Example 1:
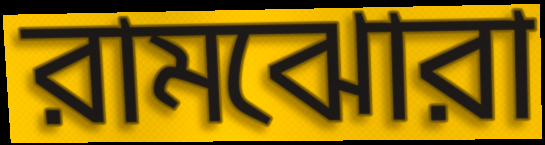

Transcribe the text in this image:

রামঝোরা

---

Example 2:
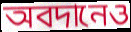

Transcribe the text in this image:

অবদানেও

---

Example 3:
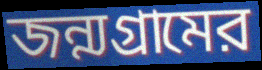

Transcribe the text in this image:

জন্মগ্রামের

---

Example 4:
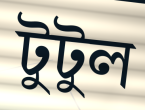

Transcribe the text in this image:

টুটুল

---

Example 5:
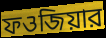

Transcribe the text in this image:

ফওজিয়ার